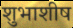
शुभाशीष